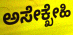
ಅಸೇಕ್ಖೇಹಿ